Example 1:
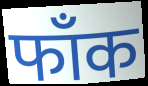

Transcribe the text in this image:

फाँक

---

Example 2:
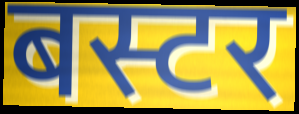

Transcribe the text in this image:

बस्टर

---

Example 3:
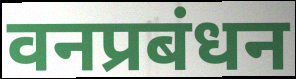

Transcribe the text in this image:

वनप्रबंधन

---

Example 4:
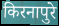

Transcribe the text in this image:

किरनापुरे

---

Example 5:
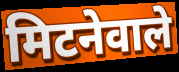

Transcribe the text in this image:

मिटनेवाले